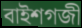
বাইশগজী